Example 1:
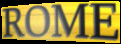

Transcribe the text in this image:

ROME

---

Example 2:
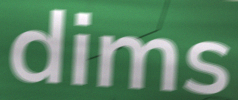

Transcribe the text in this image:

dims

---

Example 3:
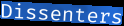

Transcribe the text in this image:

Dissenters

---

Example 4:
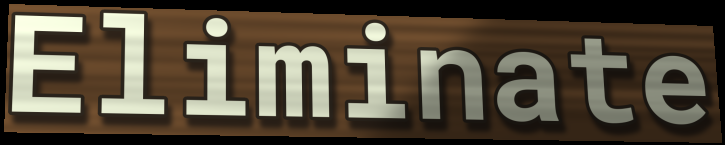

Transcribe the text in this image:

Eliminate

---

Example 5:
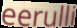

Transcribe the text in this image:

eerulli